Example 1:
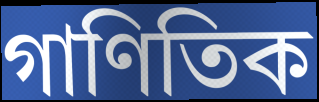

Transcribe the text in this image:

গাণিতিক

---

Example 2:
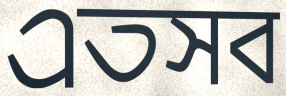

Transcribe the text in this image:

এতসব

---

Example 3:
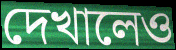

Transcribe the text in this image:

দেখালেও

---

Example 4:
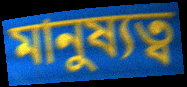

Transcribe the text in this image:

মানুষ্যত্ব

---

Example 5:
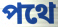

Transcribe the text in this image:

পথে